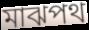
মাঝপথ